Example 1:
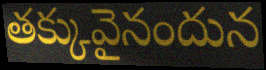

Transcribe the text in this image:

తక్కువైనందున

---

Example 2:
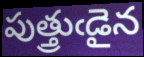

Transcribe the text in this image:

పుత్త్రుఁడైన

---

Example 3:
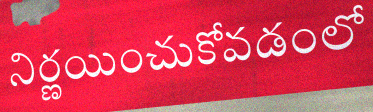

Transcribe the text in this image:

నిర్ణయించుకోవడంలో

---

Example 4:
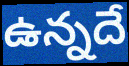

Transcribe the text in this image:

ఉన్నదే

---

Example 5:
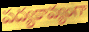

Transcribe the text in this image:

పద్యకావ్యంగా